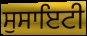
ਸੁਸਾਇਟੀ